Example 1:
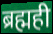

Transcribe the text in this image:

ब्रह्मही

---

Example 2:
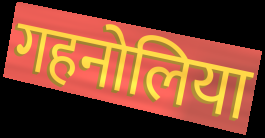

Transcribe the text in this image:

गहनोलिया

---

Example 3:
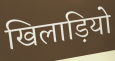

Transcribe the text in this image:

खिलाड़ियो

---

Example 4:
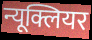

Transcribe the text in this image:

न्‍यूक्लियर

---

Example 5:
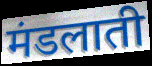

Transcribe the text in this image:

मंडलाती